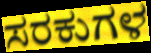
ಸರಕುಗಳ